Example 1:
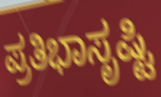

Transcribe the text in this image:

ಪ್ರತಿಭಾಸೃಷ್ಟಿ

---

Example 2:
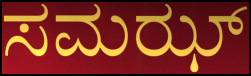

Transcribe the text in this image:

ಸಮಝ್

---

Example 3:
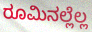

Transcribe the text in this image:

ರೂಮಿನಲ್ಲೆಲ್ಲ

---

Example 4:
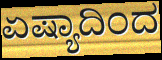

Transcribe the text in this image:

ಏಷ್ಯಾದಿಂದ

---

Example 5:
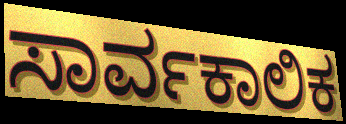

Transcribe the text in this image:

ಸಾರ್ವಕಾಲಿಕ